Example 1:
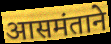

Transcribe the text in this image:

आसमंताने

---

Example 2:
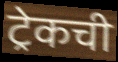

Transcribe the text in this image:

ट्रेकची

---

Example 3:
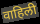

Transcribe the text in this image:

वाहिली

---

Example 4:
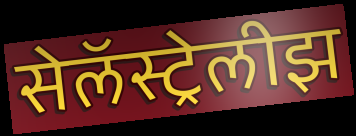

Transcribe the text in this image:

सेलॅस्ट्रेलीझ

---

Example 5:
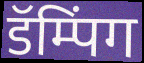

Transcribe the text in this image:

डॅम्पिंग